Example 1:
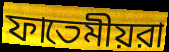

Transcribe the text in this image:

ফাতেমীয়রা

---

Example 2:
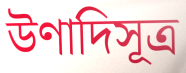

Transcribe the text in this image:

উণাদিসূত্র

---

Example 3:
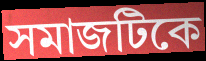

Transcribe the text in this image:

সমাজটিকে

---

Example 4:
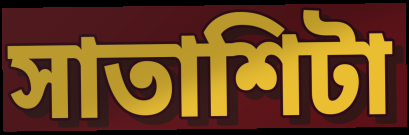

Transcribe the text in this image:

সাতাশিটা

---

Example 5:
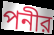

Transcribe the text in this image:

পনীর